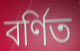
বৰ্ণিত